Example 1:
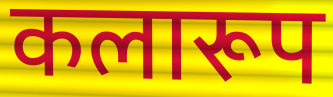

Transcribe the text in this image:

कलारूप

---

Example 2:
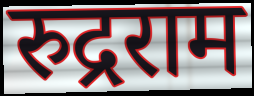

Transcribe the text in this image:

रुद्रराम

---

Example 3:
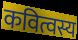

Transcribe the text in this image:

कवित्वस्य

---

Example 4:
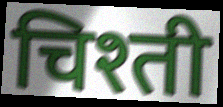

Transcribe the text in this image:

चिश्ती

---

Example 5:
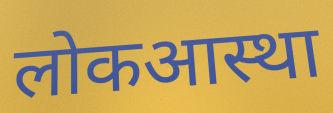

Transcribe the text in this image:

लोकआस्था